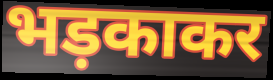
भड़काकर